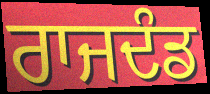
ਰਾਜਦੰਡ